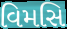
વિમસિ